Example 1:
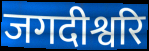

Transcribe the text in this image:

जगदीश्वरि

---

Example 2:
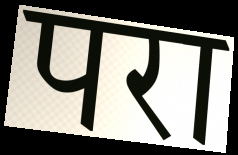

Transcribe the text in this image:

परा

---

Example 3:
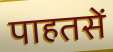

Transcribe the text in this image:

पाहतसें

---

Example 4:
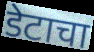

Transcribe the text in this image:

डेटाचा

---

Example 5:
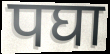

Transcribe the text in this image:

पघा